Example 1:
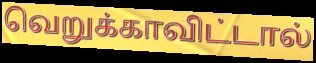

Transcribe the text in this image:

வெறுக்காவிட்டால்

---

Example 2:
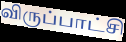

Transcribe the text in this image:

விருப்பாட்சி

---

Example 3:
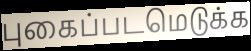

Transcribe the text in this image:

புகைப்படமெடுக்க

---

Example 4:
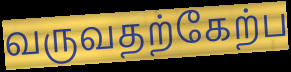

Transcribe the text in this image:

வருவதற்கேற்ப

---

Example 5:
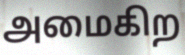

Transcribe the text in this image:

அமைகிற